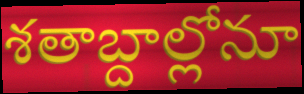
శతాబ్దాల్లోనూ